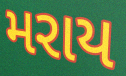
મરાય